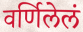
वर्णिलेलं